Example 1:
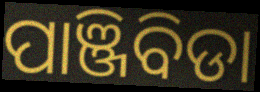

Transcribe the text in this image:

ପାଞ୍ଜିବିଡା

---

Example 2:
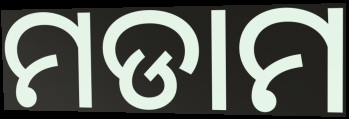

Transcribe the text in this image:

ମଡାମ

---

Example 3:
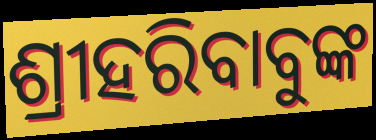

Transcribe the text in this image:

ଶ୍ରୀହରିବାବୁଙ୍କ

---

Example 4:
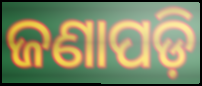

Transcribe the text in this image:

ଜଣାପଡ଼ି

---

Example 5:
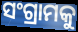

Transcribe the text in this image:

ସଂଗ୍ରାମକୁ